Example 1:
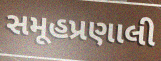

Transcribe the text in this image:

સમૂહપ્રણાલી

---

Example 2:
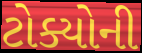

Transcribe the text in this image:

ટોક્યોની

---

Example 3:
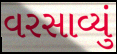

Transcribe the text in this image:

વરસાવ્યું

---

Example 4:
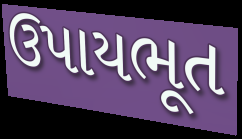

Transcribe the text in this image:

ઉપાયભૂત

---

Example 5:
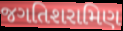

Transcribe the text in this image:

જગતિશરામિણ